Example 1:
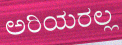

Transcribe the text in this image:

ಅರಿಯರಲ್ಲ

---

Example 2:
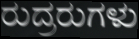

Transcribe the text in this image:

ರುದ್ರರುಗಳು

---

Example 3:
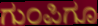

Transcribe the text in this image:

ಗುಂಪಿಗೂ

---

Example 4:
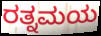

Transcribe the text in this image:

ರತ್ನಮಯ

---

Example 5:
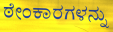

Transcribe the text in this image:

ಠೇಂಕಾರಗಳನ್ನು